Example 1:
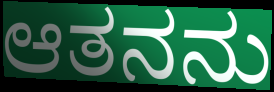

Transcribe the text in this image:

ಆತನನು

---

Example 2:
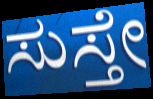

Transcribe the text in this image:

ಸುಸ್ತೇ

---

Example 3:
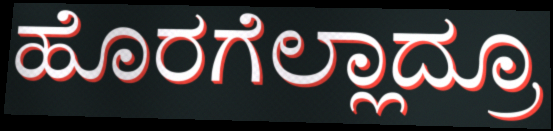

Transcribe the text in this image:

ಹೊರಗೆಲ್ಲಾದ್ರೂ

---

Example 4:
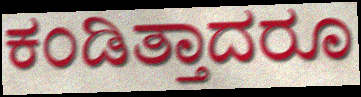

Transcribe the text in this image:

ಕಂಡಿತ್ತಾದರೂ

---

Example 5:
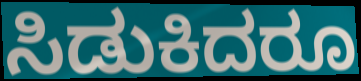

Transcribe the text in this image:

ಸಿಡುಕಿದರೂ